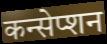
कन्सेप्शन